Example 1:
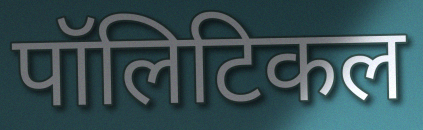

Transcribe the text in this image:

पॉलिटिकल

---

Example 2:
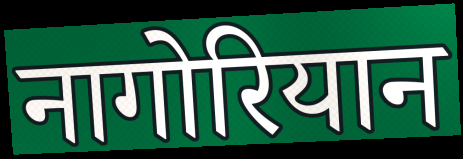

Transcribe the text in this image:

नागोरियान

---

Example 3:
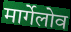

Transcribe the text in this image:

मार्गेलोव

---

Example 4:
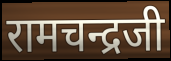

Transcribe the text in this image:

रामचन्द्रजी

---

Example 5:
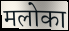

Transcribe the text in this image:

मलोका